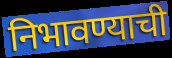
निभावण्याची